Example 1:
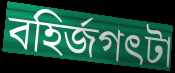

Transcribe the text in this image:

বহির্জগৎটা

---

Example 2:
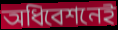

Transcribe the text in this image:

অধিবেশনেই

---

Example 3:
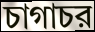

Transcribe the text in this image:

চাগাচর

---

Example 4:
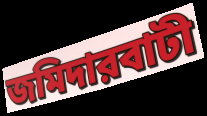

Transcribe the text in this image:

জমিদারবাটী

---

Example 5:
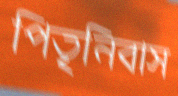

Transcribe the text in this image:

পিতৃনিবাস